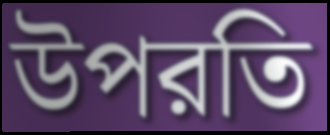
উপরতি